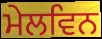
ਮੇਲਵਿਨ